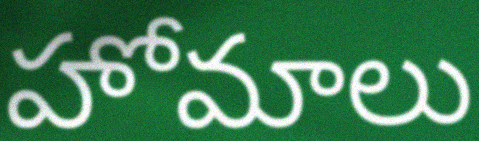
హోమాలు